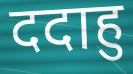
ददाहु